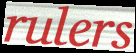
rulers